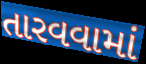
તારવવામાં